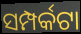
ସମ୍ପର୍କଟା